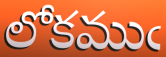
లోకముఁ